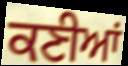
ਕਣੀਆਂ